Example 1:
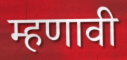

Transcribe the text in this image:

म्हणावी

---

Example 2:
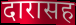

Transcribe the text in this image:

दारासह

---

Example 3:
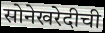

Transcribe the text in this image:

सोनेखरेदीची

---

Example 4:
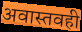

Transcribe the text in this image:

अवास्तवही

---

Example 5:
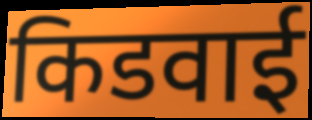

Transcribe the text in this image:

किडवाई